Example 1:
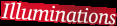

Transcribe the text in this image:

Illuminations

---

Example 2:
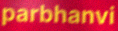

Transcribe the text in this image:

parbhanvi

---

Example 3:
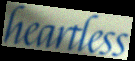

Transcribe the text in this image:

heartless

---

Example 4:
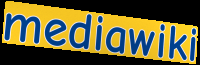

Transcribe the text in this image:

mediawiki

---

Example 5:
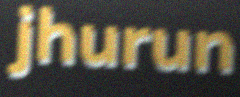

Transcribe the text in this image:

jhurun